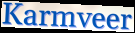
Karmveer